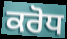
ਕਰੋਧ